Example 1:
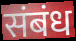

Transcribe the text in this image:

संबंध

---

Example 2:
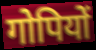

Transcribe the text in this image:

गोपियों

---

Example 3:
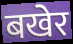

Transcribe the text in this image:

बखेर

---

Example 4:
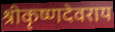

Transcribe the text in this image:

श्रीकृष्णदेवराय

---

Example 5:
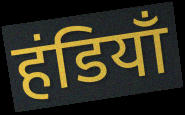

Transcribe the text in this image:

हंडियाँ